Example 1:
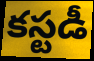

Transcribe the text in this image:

కస్టడీ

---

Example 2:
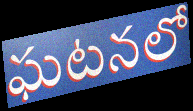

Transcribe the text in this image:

ఘటనలో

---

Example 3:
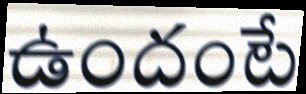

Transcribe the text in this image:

ఉందంటే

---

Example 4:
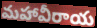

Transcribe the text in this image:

మహావీరాయ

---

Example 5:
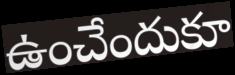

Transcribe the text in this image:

ఉంచేందుకూ